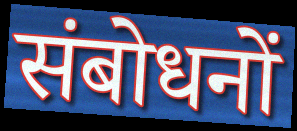
संबोधनों